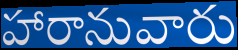
హారానువారు